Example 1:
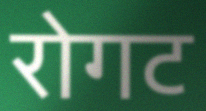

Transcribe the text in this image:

रोगट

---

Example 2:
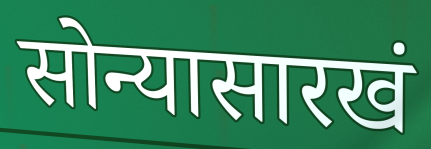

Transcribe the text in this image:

सोन्यासारखं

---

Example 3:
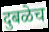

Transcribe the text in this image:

दुबळेच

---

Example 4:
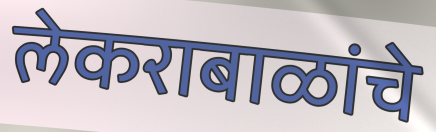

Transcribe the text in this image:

लेकराबाळांचे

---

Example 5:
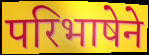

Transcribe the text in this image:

परिभाषेने